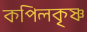
কপিলকৃষ্ণ